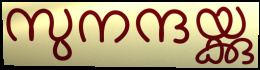
സുനന്ദയ്ക്കു